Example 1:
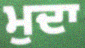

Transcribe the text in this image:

ਮੁਦਾ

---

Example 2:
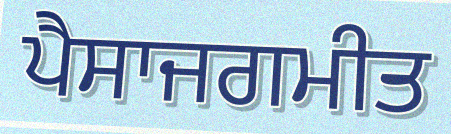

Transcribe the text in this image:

ਪੈਸਾਜਗਮੀਤ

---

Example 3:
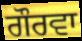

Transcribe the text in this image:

ਗੌਰਵਾ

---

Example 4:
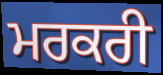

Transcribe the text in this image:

ਮਰਕਰੀ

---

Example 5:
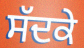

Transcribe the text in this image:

ਸੱਦਕੇ